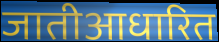
जातीआधारित